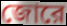
জোরে